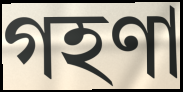
গহণা